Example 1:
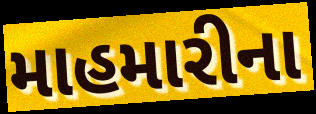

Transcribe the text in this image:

માહમારીના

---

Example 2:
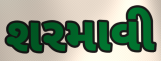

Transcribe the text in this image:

શરમાવી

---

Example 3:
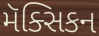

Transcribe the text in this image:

મૅક્સિકન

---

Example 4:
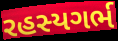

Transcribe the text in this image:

રહસ્યગર્ભ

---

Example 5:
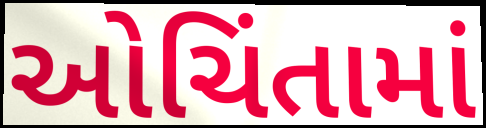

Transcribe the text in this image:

ઓચિંતામાં